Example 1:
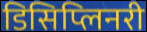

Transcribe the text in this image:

डिसिप्लिनरी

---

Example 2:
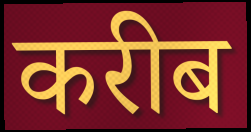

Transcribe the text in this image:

करीब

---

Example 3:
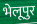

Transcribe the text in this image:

भेलूपुर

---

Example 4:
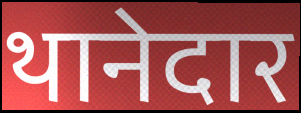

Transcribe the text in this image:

थानेदार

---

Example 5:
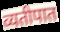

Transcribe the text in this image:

व्यतीपात